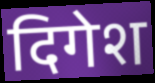
दिगेश